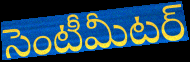
సెంటీమీటర్